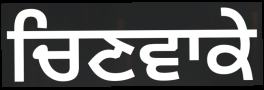
ਚਿਣਵਾਕੇ